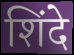
शिंदे